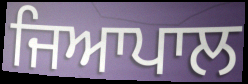
ਜਿਆਪਾਲ